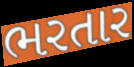
ભરતાર